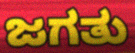
ಜಗತು